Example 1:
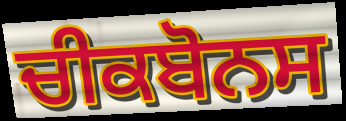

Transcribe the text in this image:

ਚੀਕਬੋਨਸ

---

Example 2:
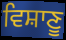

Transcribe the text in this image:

ਵਿਸ਼ਾਣੂ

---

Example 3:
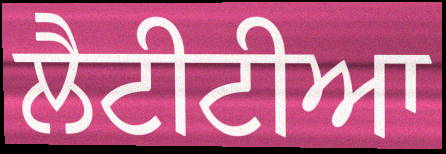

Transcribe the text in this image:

ਲੈਟੀਟੀਆ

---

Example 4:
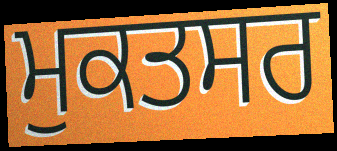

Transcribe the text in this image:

ਮੁਕਤਸਰ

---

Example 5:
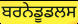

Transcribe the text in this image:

ਬਰਨੇਡੂਡਲਸ